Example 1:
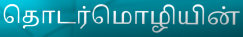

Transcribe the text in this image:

தொடர்மொழியின்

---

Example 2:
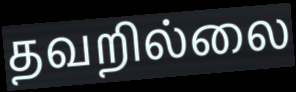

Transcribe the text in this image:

தவறில்லை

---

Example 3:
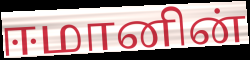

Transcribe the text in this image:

ஈமானின்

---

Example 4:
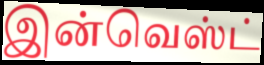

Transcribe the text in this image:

இன்வெஸ்ட்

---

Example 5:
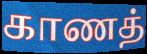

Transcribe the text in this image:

காணத்